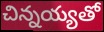
చిన్నయ్యతో